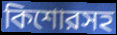
কিশোরসহ